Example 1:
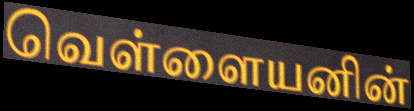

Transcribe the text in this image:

வெள்ளையனின்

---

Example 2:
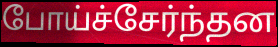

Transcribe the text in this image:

போய்ச்சேர்ந்தன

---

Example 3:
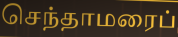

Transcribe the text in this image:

செந்தாமரைப்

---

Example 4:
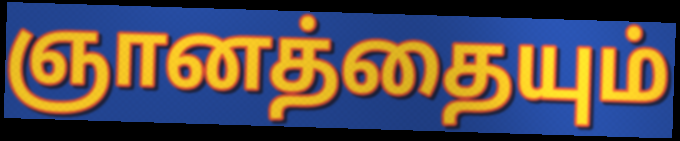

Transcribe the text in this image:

ஞானத்தையும்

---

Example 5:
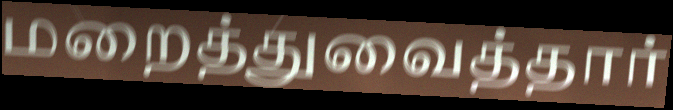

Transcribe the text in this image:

மறைத்துவைத்தார்